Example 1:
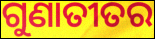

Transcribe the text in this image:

ଗୁଣାତୀତର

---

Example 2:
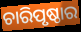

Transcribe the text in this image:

ଚାରିପୃଷ୍ଠାର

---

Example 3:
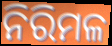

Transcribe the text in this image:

ନିରିମଳ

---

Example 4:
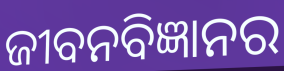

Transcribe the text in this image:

ଜୀବନବିଜ୍ଞାନର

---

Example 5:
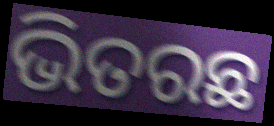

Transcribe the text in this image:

ଭିତରଛ